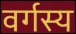
वर्गस्य